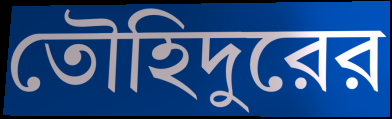
তৌহিদুরের